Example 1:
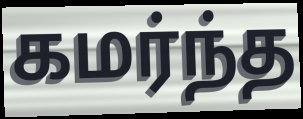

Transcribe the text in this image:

கமர்ந்த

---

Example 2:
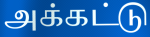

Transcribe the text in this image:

அக்கட்டு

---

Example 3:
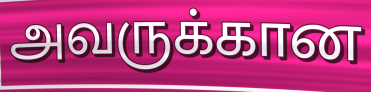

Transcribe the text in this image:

அவருக்கான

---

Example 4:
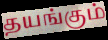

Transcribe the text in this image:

தயங்கும்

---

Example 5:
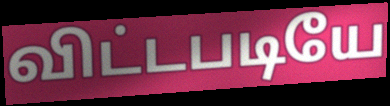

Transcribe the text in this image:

விட்டபடியே